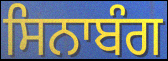
ਸਿਨਾਬੰਗ